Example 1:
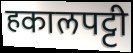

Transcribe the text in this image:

हकालपट्टी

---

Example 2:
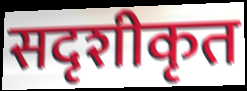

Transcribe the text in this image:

सदृशीकृत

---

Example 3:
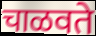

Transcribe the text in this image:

चाळवते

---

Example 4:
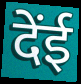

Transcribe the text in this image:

देंई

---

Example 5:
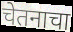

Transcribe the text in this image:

चेतनाचा